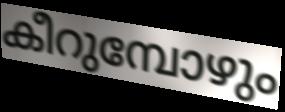
കീറുമ്പോഴും